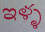
ఇళ్ళ